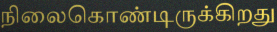
நிலைகொண்டிருக்கிறது